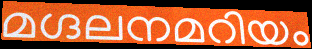
മഗ്ദലനമറിയം